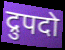
द्रुपदो